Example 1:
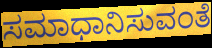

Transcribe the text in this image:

ಸಮಾಧಾನಿಸುವಂತೆ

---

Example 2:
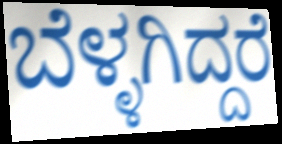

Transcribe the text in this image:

ಬೆಳ್ಳಗಿದ್ದರೆ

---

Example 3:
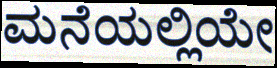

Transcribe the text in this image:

ಮನೆಯಲ್ಲಿಯೇ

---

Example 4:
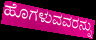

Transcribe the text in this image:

ಹೊಗಳುವವರನ್ನು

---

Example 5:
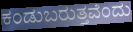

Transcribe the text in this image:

ಕಂಡುಬರುತ್ತವೆಂದು